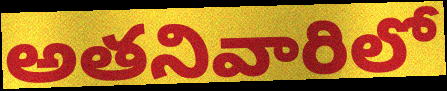
అతనివారిలో